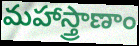
మహాస్త్రాణాం